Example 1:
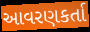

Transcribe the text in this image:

આવરણકર્તા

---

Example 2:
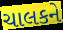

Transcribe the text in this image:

ચાલકને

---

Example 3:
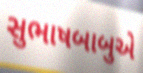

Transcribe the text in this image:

સુભાષબાબુએ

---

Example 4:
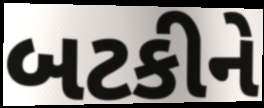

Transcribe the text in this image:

બટકીને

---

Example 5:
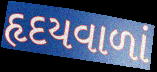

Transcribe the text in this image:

હૃદયવાળાં